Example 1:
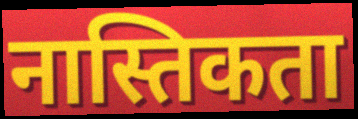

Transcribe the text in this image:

नास्तिकता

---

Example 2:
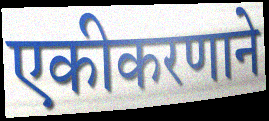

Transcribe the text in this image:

एकीकरणाने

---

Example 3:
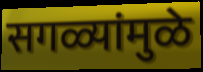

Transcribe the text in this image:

सगळ्यांमुळे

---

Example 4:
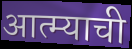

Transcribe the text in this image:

आत्म्याची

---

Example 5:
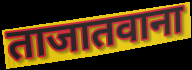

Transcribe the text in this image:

ताजातवाना